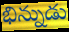
భిన్నుడు